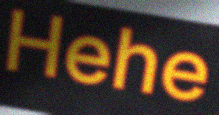
Hehe